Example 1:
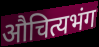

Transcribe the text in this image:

औचित्यभंग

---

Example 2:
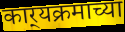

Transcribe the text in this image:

कार्यक्रमाच्या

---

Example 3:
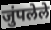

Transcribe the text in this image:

जुंपलेले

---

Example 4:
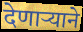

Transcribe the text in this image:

देणार्‍याने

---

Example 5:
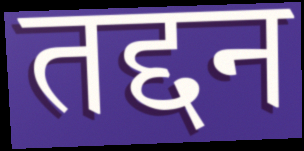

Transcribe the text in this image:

तद्दन